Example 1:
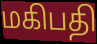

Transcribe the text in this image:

மகிபதி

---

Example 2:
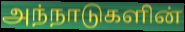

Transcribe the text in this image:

அந்நாடுகளின்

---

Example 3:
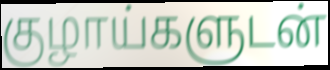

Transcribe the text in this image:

குழாய்களுடன்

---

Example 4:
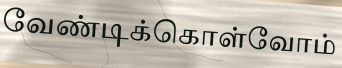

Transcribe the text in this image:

வேண்டிக்கொள்வோம்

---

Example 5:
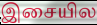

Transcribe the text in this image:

இசையில